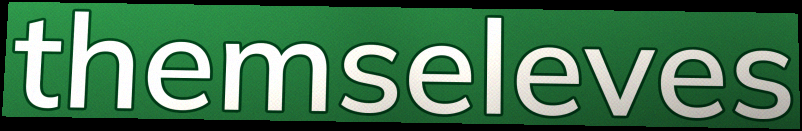
themseleves